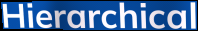
Hierarchical